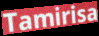
Tamirisa